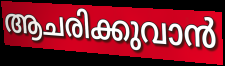
ആചരിക്കുവാൻ